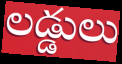
లడ్డులు